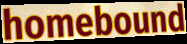
homebound